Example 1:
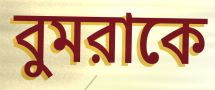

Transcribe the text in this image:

বুমরাকে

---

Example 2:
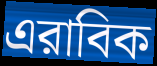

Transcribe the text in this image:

এরাবিক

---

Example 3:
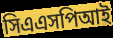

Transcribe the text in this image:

সিএএসপিআই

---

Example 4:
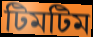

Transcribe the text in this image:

টিমটিম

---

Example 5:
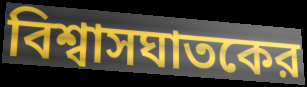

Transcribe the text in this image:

বিশ্বাসঘাতকের